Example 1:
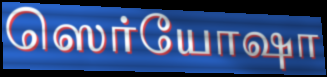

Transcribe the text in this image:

ஸெர்யோஷா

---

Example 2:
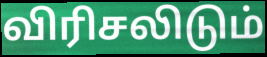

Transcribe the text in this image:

விரிசலிடும்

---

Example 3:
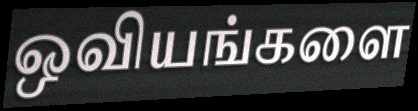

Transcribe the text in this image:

ஒவியங்களை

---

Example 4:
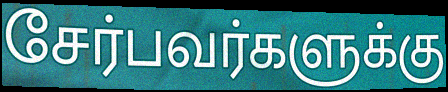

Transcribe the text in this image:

சேர்பவர்களுக்கு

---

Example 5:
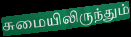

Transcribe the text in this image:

சுமையிலிருந்தும்